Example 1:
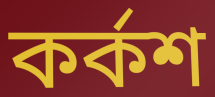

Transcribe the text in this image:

কর্কশ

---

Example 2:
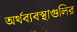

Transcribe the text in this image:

অর্থব্যবস্থাগুলির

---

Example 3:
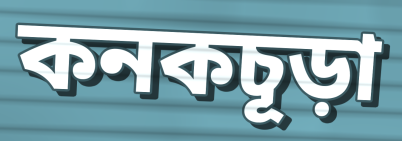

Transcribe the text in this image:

কনকচূড়া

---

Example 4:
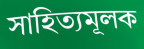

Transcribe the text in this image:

সাহিত্যমূলক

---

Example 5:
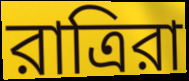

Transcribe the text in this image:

রাত্রিরা